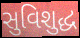
સુવિશુદ્ધ